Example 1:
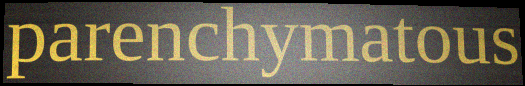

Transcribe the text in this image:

parenchymatous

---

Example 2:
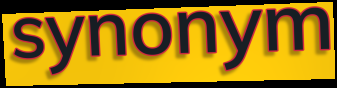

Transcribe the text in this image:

synonym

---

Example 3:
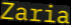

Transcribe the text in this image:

Zaria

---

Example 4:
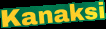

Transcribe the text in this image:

Kanaksi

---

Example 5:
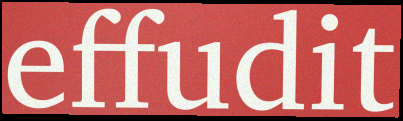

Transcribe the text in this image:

effudit